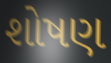
શોષણ